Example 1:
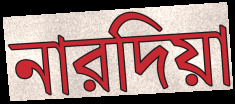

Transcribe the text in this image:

নারদিয়া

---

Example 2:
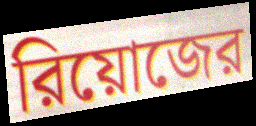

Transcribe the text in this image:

রিয়োজের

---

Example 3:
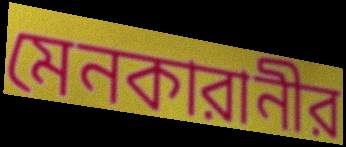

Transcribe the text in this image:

মেনকারানীর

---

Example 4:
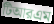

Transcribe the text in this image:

টিআরএম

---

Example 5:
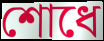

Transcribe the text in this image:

শোধে